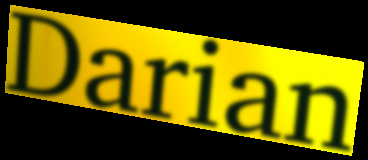
Darian